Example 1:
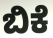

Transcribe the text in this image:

ಬಿಕೆ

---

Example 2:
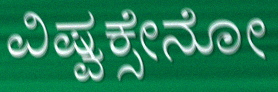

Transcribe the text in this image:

ವಿಷ್ವಕ್ಸೇನೋ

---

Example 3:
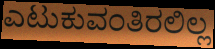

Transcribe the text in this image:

ಎಟುಕುವಂತಿರಲಿಲ್ಲ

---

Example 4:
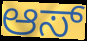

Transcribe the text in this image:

ಆಸ್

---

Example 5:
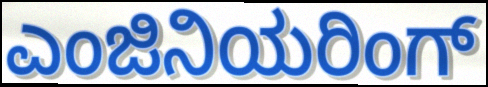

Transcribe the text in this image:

ಎಂಜಿನಿಯರಿಂಗ್